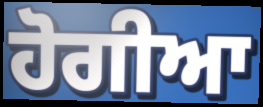
ਹੋਗੀਆ